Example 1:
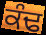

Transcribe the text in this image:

ਕੰਢ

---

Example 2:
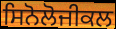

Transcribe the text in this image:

ਸਿਨੋਲੋਜੀਕਲ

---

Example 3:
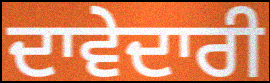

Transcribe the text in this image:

ਦਾਵੇਦਾਰੀ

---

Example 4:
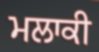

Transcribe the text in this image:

ਮਲਾਕੀ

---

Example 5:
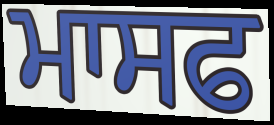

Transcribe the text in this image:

ਮਾਸਫ